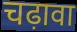
चढ़ावा